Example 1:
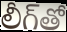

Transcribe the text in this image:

లీగ్‌తో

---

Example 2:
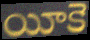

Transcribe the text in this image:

యీకె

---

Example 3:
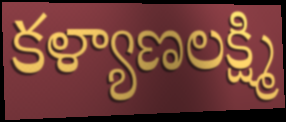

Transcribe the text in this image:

కళ్యాణలక్ష్మి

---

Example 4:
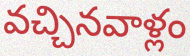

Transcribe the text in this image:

వచ్చినవాళ్లం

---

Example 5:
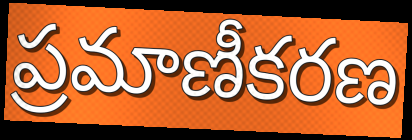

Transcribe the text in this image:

ప్రమాణీకరణ